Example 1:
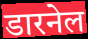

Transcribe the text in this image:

डारनेल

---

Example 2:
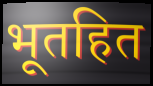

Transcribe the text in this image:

भूतहित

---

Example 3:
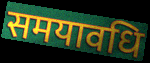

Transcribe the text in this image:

समयावधि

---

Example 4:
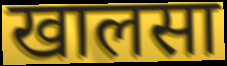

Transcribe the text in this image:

खालसा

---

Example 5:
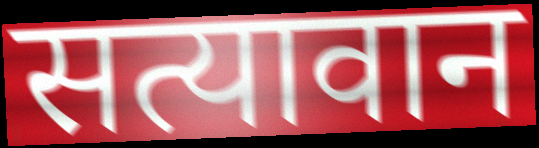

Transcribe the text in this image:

सत्यावान